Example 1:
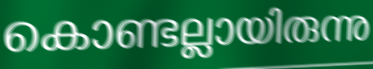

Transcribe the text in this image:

കൊണ്ടല്ലായിരുന്നു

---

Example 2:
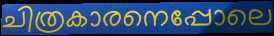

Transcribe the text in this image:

ചിത്രകാരനെപ്പോലെ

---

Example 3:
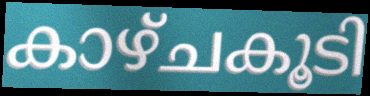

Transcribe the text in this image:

കാഴ്ചകൂടി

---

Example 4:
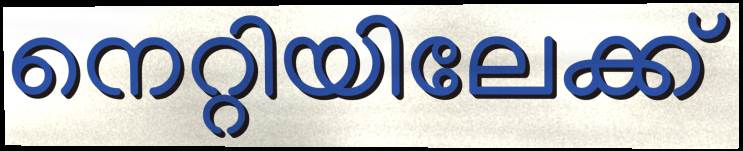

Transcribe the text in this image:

നെറ്റിയിലേക്ക്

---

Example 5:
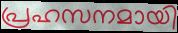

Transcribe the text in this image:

പ്രഹസനമായി